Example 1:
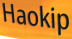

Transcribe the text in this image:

Haokip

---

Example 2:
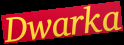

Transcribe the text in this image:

Dwarka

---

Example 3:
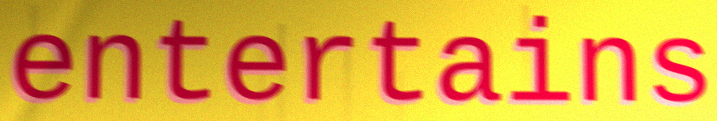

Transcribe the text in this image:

entertains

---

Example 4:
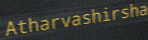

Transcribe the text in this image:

Atharvashirsha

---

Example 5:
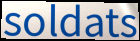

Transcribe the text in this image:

soldats